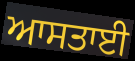
ਆਸਤਾਈ